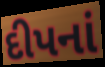
દીપનાં